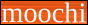
moochi